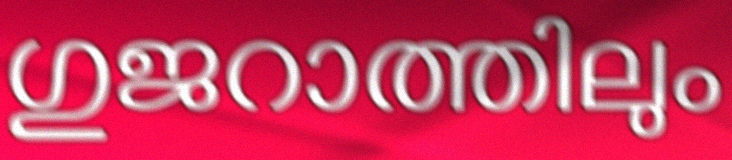
ഗുജറാത്തിലും